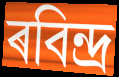
ৰবিন্দ্ৰ